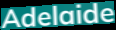
Adelaide